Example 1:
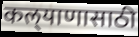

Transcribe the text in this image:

कल्याणासाठी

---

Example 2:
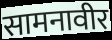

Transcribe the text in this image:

सामनावीर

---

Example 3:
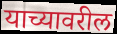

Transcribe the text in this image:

याच्यावरील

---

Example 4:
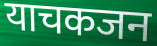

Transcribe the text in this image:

याचकजन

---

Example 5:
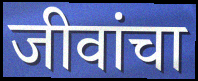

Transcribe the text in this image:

जीवांचा